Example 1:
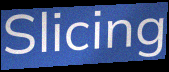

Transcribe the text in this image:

Slicing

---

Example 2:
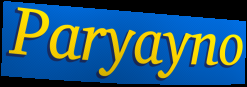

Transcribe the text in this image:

Paryayno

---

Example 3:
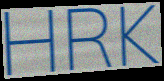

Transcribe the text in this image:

HRK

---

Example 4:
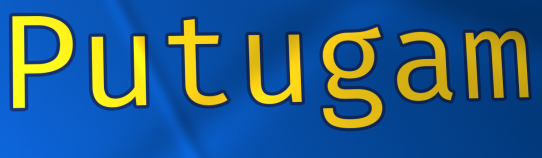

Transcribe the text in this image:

Putugam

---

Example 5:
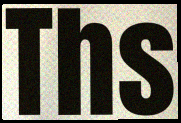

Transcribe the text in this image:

Ths